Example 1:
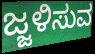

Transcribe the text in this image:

ಜ್ಜಳಿಸುವ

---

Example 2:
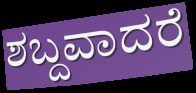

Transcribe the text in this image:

ಶಬ್ದವಾದರೆ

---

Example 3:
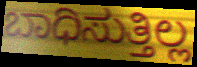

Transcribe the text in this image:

ಬಾಧಿಸುತ್ತಿಲ್ಲ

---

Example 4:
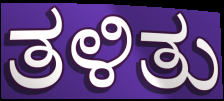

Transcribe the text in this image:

ತಳಿತು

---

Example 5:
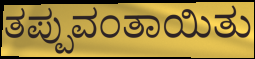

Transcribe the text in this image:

ತಪ್ಪುವಂತಾಯಿತು